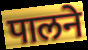
पालने